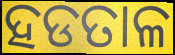
ହଡତାଳ